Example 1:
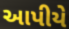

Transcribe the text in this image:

આપીયે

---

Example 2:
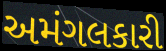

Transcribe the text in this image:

અમંગલકારી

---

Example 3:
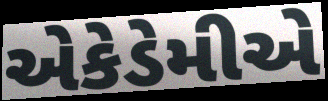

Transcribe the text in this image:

એકેડેમીએ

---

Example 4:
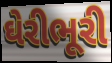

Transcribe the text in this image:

ઘેરીભૂરી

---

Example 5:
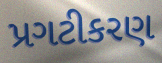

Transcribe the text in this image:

પ્રગટીકરણ